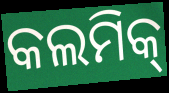
କଲମିକ୍